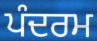
ਪੰਦਰਮ